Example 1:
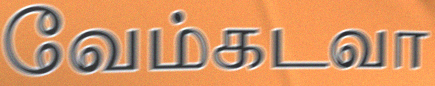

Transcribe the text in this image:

வேம்கடவா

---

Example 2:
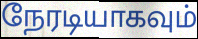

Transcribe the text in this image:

நேரடியாகவும்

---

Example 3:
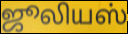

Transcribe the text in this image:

ஜூலியஸ்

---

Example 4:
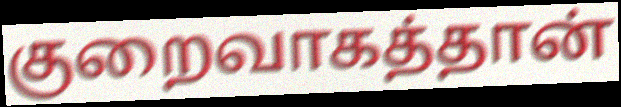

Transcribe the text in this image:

குறைவாகத்தான்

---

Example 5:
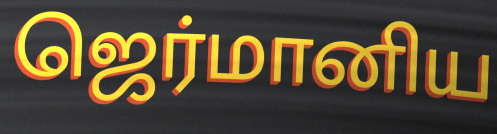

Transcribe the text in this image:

ஜெர்மானிய